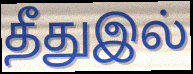
தீதுஇல்